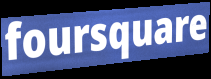
foursquare